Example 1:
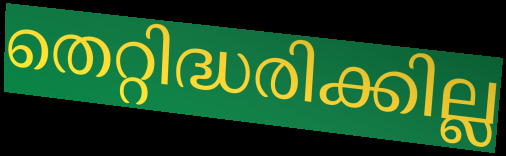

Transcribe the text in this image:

തെറ്റിദ്ധരിക്കില്ല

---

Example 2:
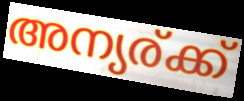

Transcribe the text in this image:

അന്യര്ക്ക്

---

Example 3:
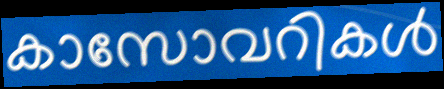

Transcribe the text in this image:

കാസോവറികൾ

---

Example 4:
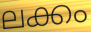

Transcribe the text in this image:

ലക്കം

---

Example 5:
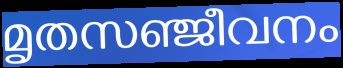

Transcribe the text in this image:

മൃതസഞ്ജീവനം